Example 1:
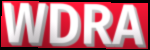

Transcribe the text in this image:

WDRA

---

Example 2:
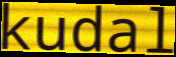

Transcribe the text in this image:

kudal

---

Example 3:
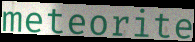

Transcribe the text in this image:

meteorite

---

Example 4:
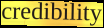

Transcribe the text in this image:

credibility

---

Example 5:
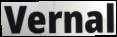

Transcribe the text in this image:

Vernal